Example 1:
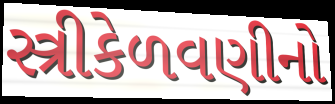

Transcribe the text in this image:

સ્ત્રીકેળવણીનો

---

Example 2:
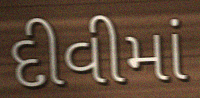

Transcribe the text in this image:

દીવીમાં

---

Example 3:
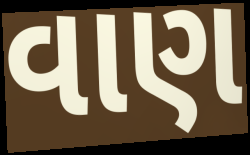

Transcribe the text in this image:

વાણ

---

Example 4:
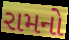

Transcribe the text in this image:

રામનો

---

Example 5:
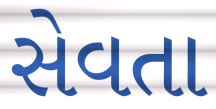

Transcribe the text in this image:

સેવતા